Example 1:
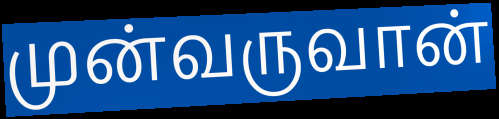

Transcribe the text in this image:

முன்வருவான்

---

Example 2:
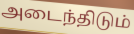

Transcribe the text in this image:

அடைந்திடும்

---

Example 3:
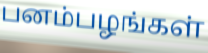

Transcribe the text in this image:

பனம்பழங்கள்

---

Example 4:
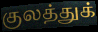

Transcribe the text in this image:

குலத்துக்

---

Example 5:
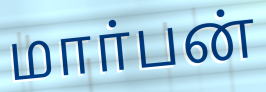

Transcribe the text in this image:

மார்பன்